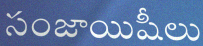
సంజాయిషీలు